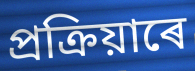
প্ৰক্ৰিয়াৰে